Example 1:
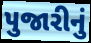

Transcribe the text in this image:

પુજારીનું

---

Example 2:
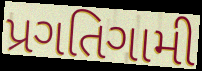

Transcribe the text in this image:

પ્રગતિગામી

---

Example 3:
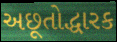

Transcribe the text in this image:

અછૂતોદ્ધારક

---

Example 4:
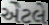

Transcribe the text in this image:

એેટલે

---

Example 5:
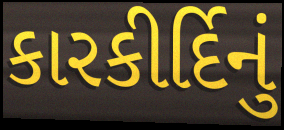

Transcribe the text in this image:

કારકીર્દિનું